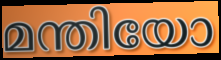
മന്തിയോ